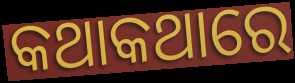
କଥାକଥାରେ